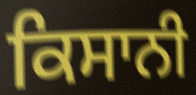
ਕਿਸਾਨੀ